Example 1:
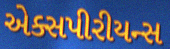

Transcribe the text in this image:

એક્સપીરીયન્સ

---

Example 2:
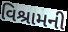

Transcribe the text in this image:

વિશ્રામની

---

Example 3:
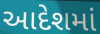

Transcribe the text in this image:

આદેશમાં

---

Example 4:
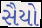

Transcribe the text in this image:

સૈયો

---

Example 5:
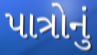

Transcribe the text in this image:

પાત્રોનું